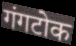
गंगटोक